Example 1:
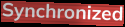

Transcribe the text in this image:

Synchronized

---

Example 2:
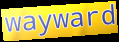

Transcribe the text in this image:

wayward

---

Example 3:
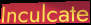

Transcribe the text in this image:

Inculcate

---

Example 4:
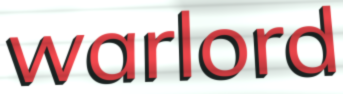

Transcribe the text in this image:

warlord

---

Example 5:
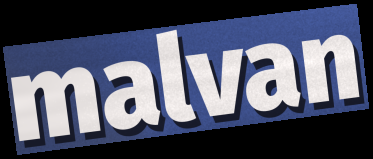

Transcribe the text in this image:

malvan